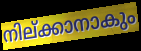
നില്ക്കാനാകും